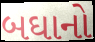
બઘાનો